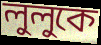
লুলুকে